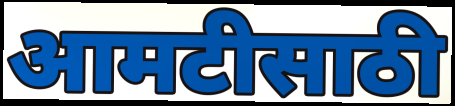
आमटीसाठी